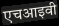
एचआइवी